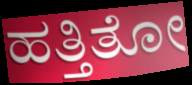
ಹತ್ತಿತೋ